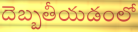
దెబ్బతీయడంలో